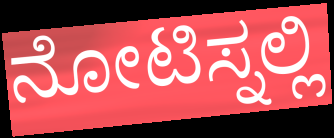
ನೋಟಿಸ್ನಲ್ಲಿ